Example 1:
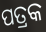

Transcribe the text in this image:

ପତ୍ରକ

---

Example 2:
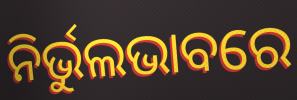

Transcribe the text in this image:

ନିର୍ଭୁଲଭାବରେ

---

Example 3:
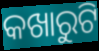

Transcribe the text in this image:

କଖାରୁଟି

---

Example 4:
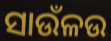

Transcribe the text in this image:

ସାଉଁଳଉ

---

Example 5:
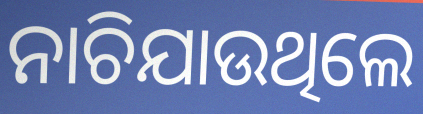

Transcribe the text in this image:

ନାଚିଯାଉଥିଲେ